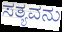
ಸತ್ಯವನು